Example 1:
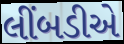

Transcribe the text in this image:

લીંબડીએ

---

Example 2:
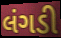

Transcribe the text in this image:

લંગડી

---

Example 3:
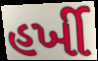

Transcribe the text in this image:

હર્ખી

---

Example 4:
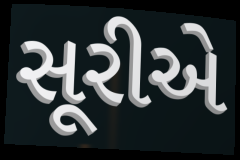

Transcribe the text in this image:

સૂરીએ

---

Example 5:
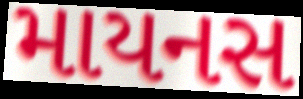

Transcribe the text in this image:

માયનસ